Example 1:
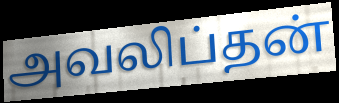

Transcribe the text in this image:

அவலிப்தன்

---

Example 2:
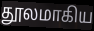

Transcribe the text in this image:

தூலமாகிய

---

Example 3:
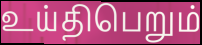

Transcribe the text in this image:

உய்திபெறும்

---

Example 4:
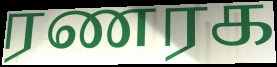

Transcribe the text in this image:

ரணரக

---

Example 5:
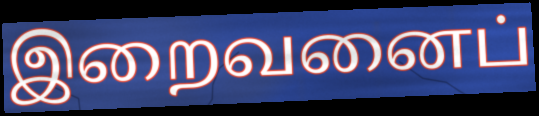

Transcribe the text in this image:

இறைவனைப்